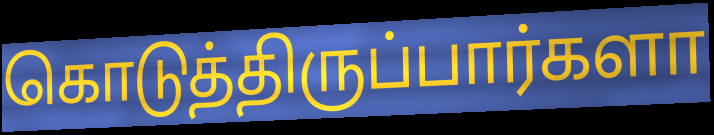
கொடுத்திருப்பார்களா